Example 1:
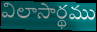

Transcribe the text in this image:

విలాసార్థము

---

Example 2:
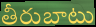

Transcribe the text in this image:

తీరుబాటు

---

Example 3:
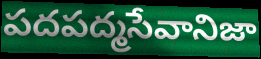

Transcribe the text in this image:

పదపద్మసేవానిజా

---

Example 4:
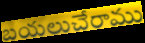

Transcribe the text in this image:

బయలుచేరాము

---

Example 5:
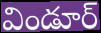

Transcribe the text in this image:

విండూర్